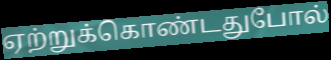
ஏற்றுக்கொண்டதுபோல்